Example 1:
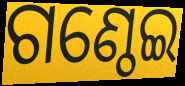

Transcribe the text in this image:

ଗଣ୍ଠେଇ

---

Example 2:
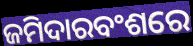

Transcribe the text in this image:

ଜମିଦାରବଂଶରେ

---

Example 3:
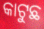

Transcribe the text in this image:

କାଟୁଛ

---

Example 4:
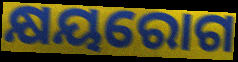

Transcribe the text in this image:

କ୍ଷୟରୋଗ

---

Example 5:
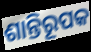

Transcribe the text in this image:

ଶାନ୍ତିରୂପକ